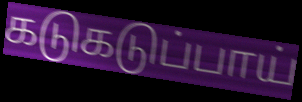
கடுகடுப்பாய்